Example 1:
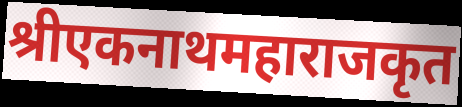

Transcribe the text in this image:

श्रीएकनाथमहाराजकृत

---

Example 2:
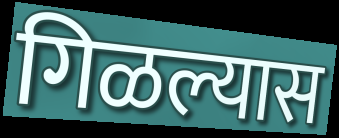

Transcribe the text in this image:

गिळल्यास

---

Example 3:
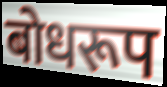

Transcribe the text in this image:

बोधरूप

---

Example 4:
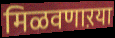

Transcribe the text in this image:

मिळवणाऱया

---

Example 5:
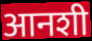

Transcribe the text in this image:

आनशी